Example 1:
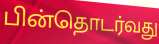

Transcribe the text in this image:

பின்தொடர்வது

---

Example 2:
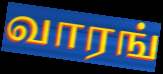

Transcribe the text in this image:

வாரங்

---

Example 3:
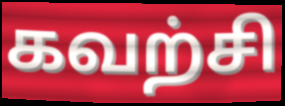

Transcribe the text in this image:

கவற்சி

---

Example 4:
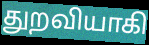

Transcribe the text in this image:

துறவியாகி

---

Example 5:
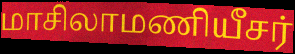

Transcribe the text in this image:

மாசிலாமணியீசர்